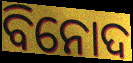
ବିନୋଦ